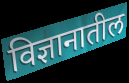
विज्ञानातील